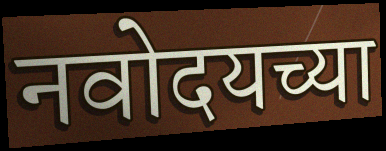
नवोदयच्या